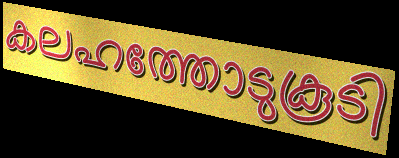
കലഹത്തോടുകൂടി